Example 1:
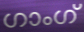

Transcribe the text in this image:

ഗാംഗ്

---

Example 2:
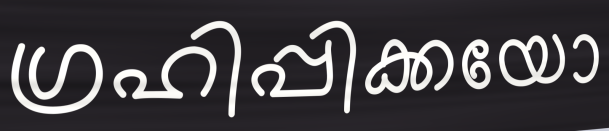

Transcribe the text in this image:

ഗ്രഹിപ്പിക്കയോ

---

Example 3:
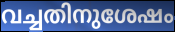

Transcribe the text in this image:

വച്ചതിനുശേഷം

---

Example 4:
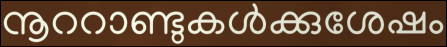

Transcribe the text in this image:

നൂററാണ്ടുകൾക്കുശേഷം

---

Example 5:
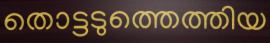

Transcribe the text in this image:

തൊട്ടടുത്തെത്തിയ